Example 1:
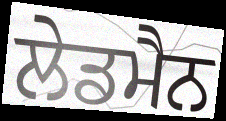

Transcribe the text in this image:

ਲੇਡਮੈਨ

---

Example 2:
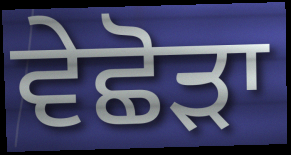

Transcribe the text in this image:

ਵੇਛੋੜਾ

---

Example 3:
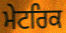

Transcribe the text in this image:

ਮੇਟਰਿਕ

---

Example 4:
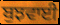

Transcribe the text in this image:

ਬੁਝਵਾਈ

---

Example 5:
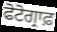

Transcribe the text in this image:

ਫੋਟੋਗ੍ਰਾਫ਼